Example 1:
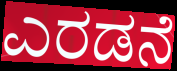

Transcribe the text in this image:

ಎರಡನೆ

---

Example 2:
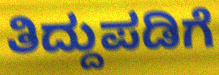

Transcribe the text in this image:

ತಿದ್ದುಪಡಿಗೆ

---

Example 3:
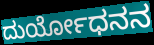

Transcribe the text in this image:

ದುರ್ಯೋಧನನ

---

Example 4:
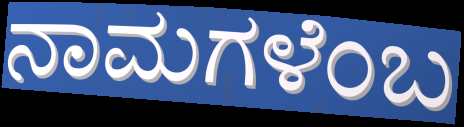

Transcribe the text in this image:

ನಾಮಗಳೆಂಬ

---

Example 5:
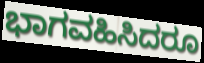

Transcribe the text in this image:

ಭಾಗವಹಿಸಿದರೂ